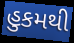
હુકમથી